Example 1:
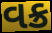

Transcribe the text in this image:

વક્ર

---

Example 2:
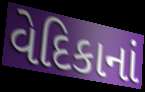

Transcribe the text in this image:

વેદિકાનાં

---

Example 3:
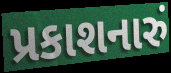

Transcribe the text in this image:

પ્રકાશનારું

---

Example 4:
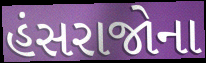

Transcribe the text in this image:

હંસરાજોના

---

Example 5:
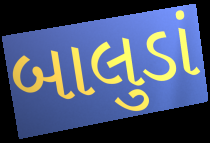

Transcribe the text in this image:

બાલુડાં